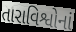
તારાવિશ્વોનાં